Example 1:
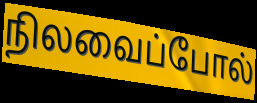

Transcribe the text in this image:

நிலவைப்போல்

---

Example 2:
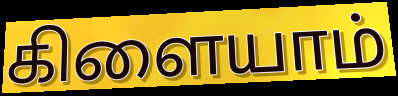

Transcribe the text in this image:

கிளையாம்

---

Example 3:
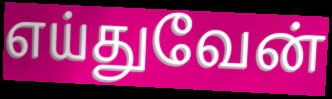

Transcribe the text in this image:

எய்துவேன்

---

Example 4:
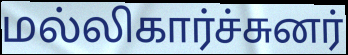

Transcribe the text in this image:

மல்லிகார்ச்சுனர்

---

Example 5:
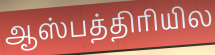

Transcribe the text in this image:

ஆஸ்பத்திரியில